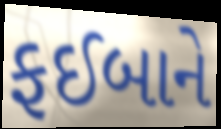
ફઈબાને